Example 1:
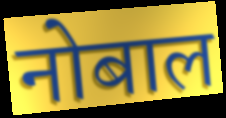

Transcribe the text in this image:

नोबाल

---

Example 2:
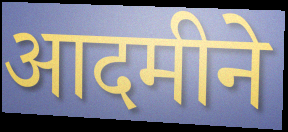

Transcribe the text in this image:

आदमीने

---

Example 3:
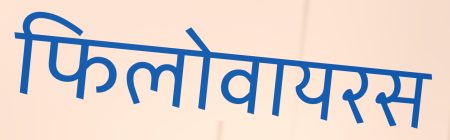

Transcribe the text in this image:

फिलोवायरस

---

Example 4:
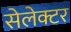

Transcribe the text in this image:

सेलेक्टर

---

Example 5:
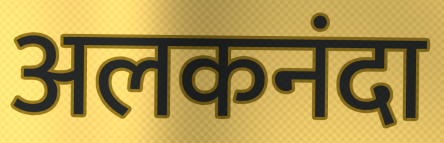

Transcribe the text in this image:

अलकनंदा